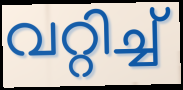
വറ്റിച്ച്